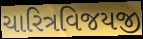
ચારિત્રવિજયજી